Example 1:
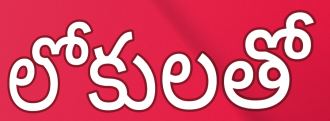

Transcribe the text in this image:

లోకులతో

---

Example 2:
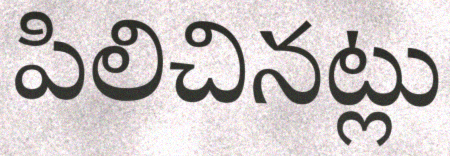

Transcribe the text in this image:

పిలిచినట్లు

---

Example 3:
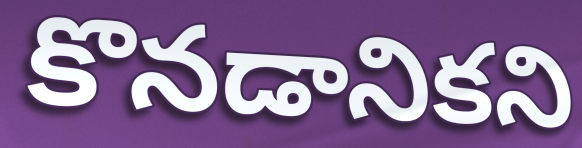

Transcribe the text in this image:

కొనడానికని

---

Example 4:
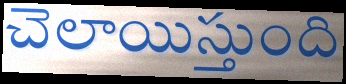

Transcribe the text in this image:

చెలాయిస్తుంది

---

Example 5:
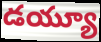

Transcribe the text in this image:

డయ్యూ